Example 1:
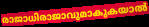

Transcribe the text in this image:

രാജാധിരാജാവുമാകുകയാൽ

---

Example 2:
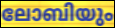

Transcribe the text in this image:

ലോബിയും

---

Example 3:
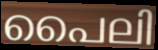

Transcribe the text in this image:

പൈലി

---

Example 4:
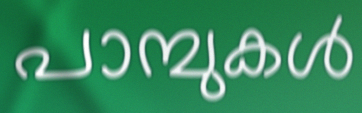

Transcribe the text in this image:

പാമ്പുകൾ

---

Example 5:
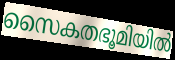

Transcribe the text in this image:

സൈകതഭൂമിയിൽ